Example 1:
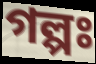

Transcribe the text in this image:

গল্পঃ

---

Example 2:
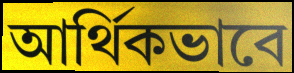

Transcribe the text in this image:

আর্থিকভাবে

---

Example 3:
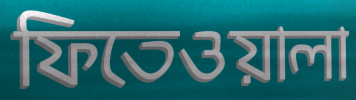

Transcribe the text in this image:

ফিতেওয়ালা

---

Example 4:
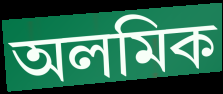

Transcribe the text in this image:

অলমিক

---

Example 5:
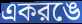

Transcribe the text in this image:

একরঙে